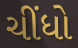
ચીંધો